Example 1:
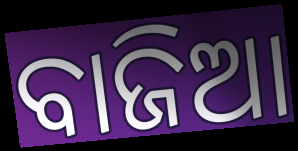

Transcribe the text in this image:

ବାଜିଆ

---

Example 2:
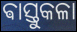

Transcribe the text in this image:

ଵାସ୍ତୁକଳା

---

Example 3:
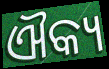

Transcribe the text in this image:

ଐକ୍ୟ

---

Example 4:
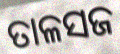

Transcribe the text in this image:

ତାଳସଜ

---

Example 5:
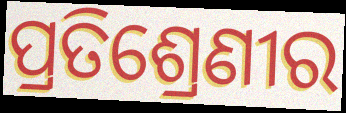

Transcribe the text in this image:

ପ୍ରତିଶ୍ରେଣୀର